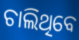
ଚାଲିଥିବେ